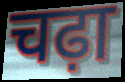
चढ़ा